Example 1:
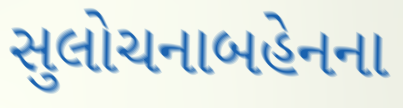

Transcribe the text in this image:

સુલોચનાબહેનના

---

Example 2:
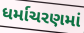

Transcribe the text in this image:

ધર્માચરણમાં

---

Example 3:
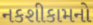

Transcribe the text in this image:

નકશીકામનો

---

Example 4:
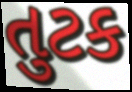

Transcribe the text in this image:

તુટક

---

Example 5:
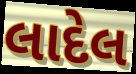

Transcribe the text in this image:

લાદેલ